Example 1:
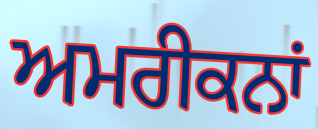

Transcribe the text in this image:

ਅਮਰੀਕਨਾਂ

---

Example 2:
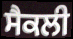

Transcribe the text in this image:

ਸੈਕਲੀ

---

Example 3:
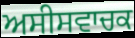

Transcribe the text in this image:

ਅਸੀਸਵਾਚਕ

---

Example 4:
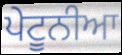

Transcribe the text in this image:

ਪੇਟੂਨੀਆ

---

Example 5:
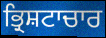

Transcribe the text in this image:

ਭ੍ਰਿਸ਼ਟਾਚਾਰ